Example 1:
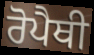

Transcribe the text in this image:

ਰੋਪੈਥੀ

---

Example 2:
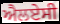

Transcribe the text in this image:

ਐਲਏਸੀ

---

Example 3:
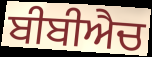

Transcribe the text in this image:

ਬੀਬੀਐਚ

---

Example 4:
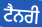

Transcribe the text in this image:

ਟੈਨਰੀ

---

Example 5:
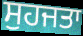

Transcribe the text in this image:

ਸੁਹਜਤਾ